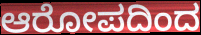
ಆರೋಪದಿಂದ